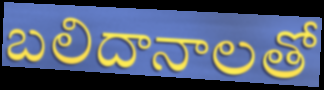
బలిదానాలతో